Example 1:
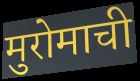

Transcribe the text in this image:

मुरोमाची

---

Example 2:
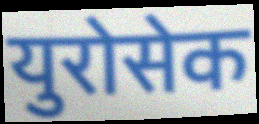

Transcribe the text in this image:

युरोसेक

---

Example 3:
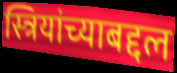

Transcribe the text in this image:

स्त्रियांच्याबद्दल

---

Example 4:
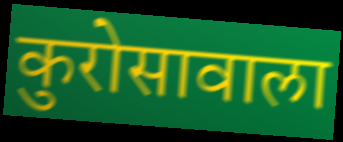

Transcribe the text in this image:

कुरोसावाला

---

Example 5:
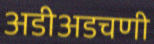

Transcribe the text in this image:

अडीअडचणी